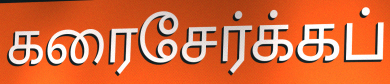
கரைசேர்க்கப்